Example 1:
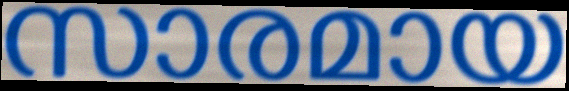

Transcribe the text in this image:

സാരമായ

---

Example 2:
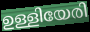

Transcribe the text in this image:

ഉള്ളിയേരി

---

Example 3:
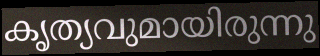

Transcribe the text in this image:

കൃത്യവുമായിരുന്നു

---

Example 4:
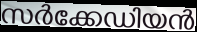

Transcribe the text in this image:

സർക്കേഡിയൻ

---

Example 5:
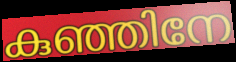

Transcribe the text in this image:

കുഞ്ഞിനേ